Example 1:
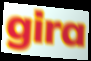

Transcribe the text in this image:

gira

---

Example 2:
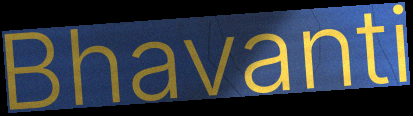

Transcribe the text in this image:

Bhavanti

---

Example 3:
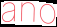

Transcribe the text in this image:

ano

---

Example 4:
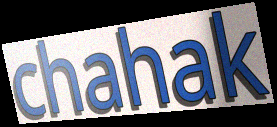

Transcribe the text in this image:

chahak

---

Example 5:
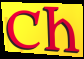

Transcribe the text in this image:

Ch